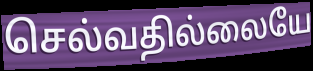
செல்வதில்லையே